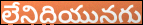
లేనిదియునగు